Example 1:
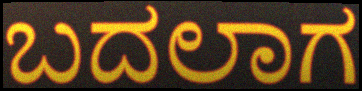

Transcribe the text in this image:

ಬದಲಾಗ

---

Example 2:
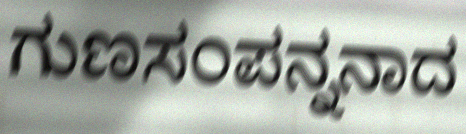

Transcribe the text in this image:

ಗುಣಸಂಪನ್ನನಾದ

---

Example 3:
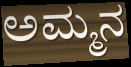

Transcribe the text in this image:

ಅಮ್ಮನ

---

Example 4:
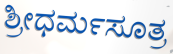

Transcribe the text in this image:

ಶ್ರೀಧರ್ಮಸೂತ್ರ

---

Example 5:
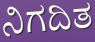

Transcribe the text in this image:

ನಿಗದಿತ